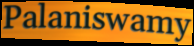
Palaniswamy